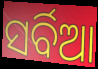
ସର୍ବିଆ